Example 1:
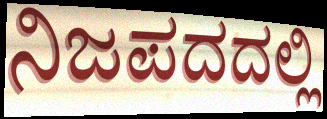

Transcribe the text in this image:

ನಿಜಪದದಲ್ಲಿ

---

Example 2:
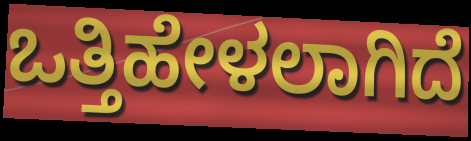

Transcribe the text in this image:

ಒತ್ತಿಹೇಳಲಾಗಿದೆ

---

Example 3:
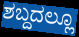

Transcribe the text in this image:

ಶಬ್ದದಲ್ಲೂ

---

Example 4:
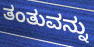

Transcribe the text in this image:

ತಂತುವನ್ನು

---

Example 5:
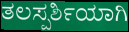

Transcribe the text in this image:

ತಲಸ್ಪರ್ಶಿಯಾಗಿ